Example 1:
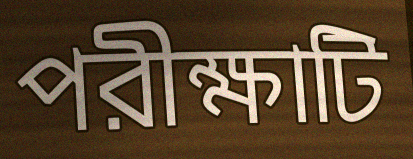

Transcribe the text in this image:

পরীক্ষাটি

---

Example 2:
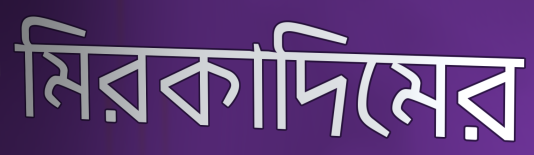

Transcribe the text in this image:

মিরকাদিমের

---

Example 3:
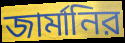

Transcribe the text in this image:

জার্মানির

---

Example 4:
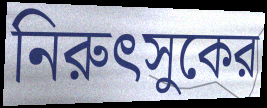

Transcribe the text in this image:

নিরুৎসুকের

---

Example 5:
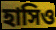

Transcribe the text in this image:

হাসিও